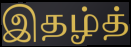
இதழ்த்